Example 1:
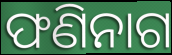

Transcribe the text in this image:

ଫଣିନାଗ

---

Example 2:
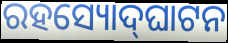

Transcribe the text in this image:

ରହସ୍ୟୋଦ୍‍ଘାଟନ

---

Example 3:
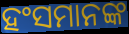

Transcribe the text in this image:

ହଂସମାନଙ୍କ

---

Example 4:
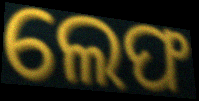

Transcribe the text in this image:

ଲେଫ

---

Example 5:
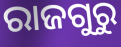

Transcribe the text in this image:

ରାଜଗୁରୁ